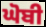
ਘੋਬੀ